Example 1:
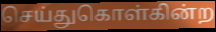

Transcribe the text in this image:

செய்துகொள்கின்ற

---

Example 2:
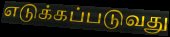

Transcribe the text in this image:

எடுக்கப்படுவது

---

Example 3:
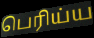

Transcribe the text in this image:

பெரிய்ய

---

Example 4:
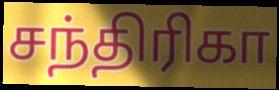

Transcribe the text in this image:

சந்திரிகா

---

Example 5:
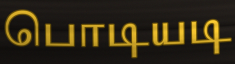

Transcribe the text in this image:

பொடியடி